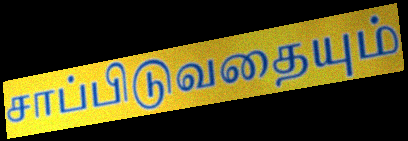
சாப்பிடுவதையும்